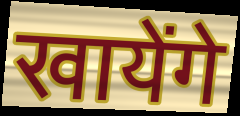
खायेंगे